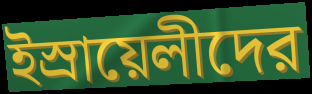
ইস্রায়েলীদের